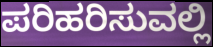
ಪರಿಹರಿಸುವಲ್ಲಿ